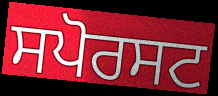
ਸਪੋਰਸਟ